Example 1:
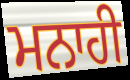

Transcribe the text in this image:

ਮਨਾਹੀ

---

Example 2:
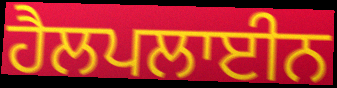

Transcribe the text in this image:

ਹੈਲਪਲਾਈਨ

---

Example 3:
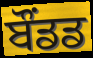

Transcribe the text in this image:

ਬੌਂਡਡ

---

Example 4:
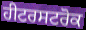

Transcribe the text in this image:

ਹੀਟਰਸਟਰੋਕ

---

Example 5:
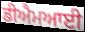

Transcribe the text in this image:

ਡੀਐਮਆਈ